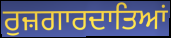
ਰੁਜ਼ਗਾਰਦਾਤਿਆਂ